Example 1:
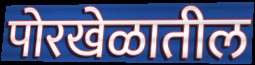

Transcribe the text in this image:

पोरखेळातील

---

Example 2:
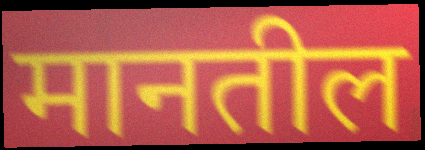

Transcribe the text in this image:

मानतील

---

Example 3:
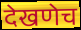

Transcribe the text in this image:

देखणेच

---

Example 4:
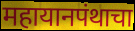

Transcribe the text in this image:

महायानपंथाचा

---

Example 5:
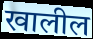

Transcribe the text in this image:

खालील